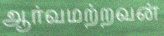
ஆர்வமற்றவன்